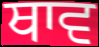
ਥਾਵ